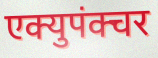
एक्युपंक्चर